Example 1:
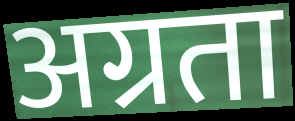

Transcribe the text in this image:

अग्रता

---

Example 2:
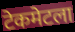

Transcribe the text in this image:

टेकमेटला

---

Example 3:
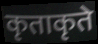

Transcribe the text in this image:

कृताकृते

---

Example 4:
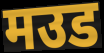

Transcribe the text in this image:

मउड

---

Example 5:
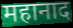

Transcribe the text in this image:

महानाद